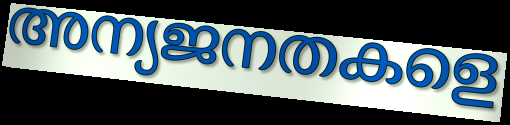
അന്യജനതകളെ